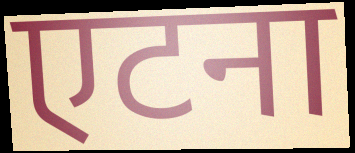
एटना